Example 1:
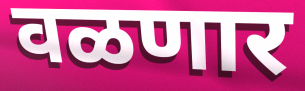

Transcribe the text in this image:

वळणार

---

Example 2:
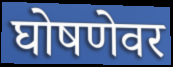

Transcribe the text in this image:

घोषणेवर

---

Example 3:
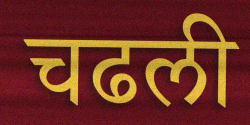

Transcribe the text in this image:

चढली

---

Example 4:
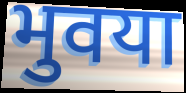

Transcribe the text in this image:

भुवया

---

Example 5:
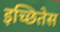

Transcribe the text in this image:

इच्छितेस